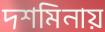
দশমিনায়